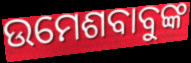
ଉମେଶବାବୁଙ୍କ